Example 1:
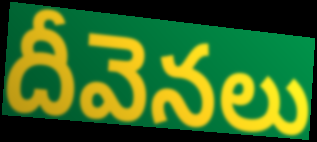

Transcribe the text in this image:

దీవెనలు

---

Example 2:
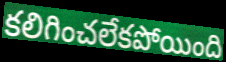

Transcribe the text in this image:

కలిగించలేకపోయింది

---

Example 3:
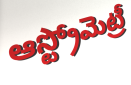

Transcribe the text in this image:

ఆస్ట్రోమెట్రీ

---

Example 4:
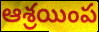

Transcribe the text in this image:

ఆశ్రయింప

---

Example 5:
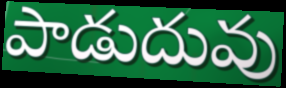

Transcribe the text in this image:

పాడుదువు